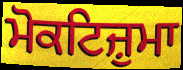
ਮੋਕਟਿਜ਼ੁਮਾ